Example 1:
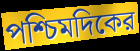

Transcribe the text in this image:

পশ্চিমদিকের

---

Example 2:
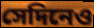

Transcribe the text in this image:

সেদিনেও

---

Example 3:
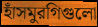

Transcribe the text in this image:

হাঁসমুরগিগুলো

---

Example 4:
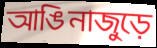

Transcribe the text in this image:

আঙিনাজুড়ে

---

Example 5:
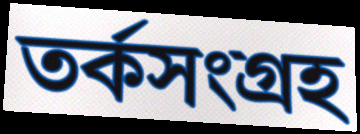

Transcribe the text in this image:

তর্কসংগ্রহ